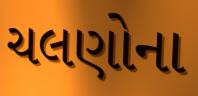
ચલણોના